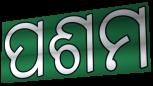
ପଶମ